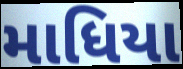
માધિયા